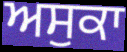
ਅਸੁਕਾ